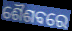
ଶୈଶବରେ